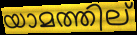
യാമത്തില്